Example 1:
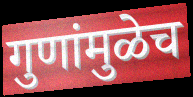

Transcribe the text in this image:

गुणांमुळेच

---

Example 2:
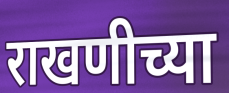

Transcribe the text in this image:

राखणीच्या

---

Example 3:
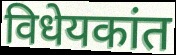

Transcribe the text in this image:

विधेयकांत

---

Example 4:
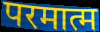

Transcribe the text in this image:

परमात्म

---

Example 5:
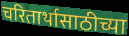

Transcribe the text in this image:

चरितार्थासाठीच्या